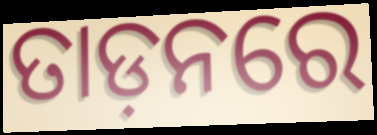
ତାଡ଼ନରେ